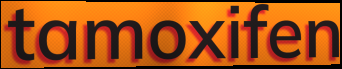
tamoxifen